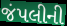
જંપલીની